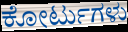
ಕೋರ್ಟುಗಳು